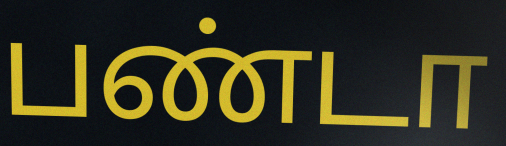
பண்டா